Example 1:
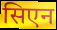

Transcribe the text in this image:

सिएन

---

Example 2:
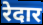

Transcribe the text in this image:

रेदार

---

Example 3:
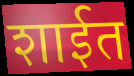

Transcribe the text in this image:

शाईत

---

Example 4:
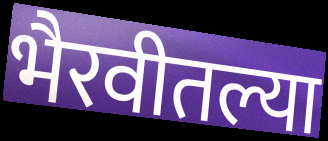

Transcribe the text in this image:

भैरवीतल्या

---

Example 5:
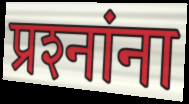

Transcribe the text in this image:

प्रश्नांना